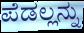
ಪೆಡಲ್ಲನ್ನು